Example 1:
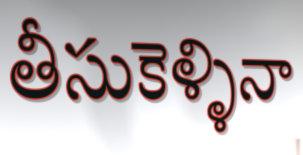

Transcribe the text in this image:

తీసుకెళ్ళినా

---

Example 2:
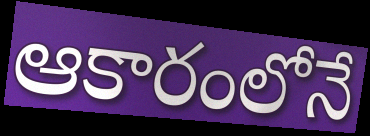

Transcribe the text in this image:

ఆకారంలోనే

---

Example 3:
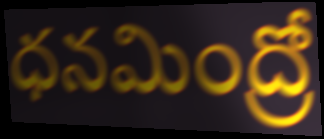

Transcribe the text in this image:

ధనమింద్రో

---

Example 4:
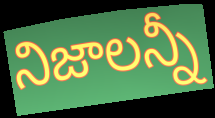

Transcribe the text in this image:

నిజాలన్నీ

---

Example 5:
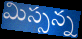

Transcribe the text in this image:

మిస్సన్న